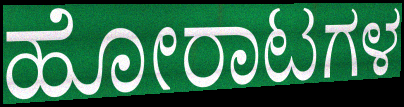
ಹೋರಾಟಗಳ